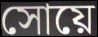
সোয়ে